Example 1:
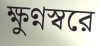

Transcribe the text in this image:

ক্ষুণ্নস্বরে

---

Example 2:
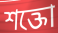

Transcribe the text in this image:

শক্তো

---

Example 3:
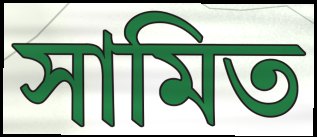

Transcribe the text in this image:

সামিত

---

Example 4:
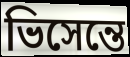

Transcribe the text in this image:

ভিসেন্তে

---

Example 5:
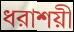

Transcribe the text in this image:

ধরাশয়ী